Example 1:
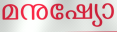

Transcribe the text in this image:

മനുഷ്യോ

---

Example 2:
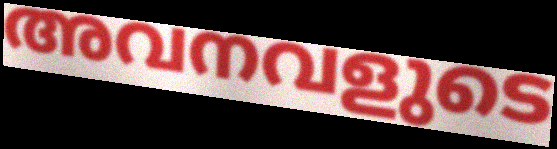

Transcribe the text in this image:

അവനവളുടെ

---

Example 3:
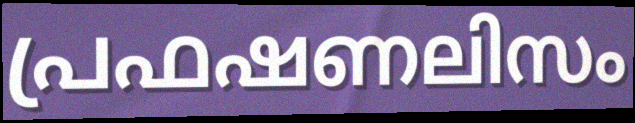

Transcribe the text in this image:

പ്രഫഷണലിസം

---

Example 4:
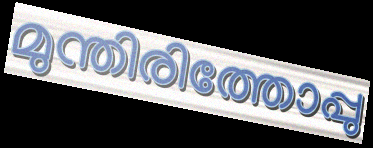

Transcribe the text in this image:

മുന്തിരിത്തോപ്പു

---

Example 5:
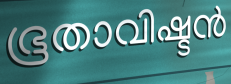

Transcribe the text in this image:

ഭൂതാവിഷ്ടൻ